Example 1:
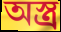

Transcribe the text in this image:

অস্ত্র্র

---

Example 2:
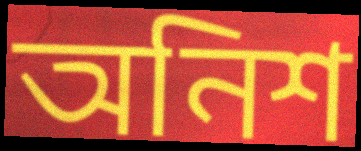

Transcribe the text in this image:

অনিশ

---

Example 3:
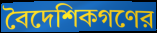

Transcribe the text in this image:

বৈদেশিকগণের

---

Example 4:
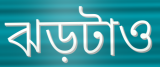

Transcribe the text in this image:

ঝড়টাও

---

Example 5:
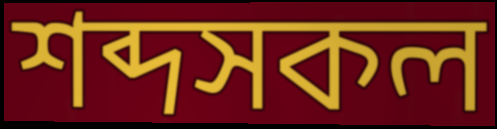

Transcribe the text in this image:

শব্দসকল